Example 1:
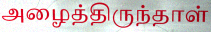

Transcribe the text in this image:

அழைத்திருந்தாள்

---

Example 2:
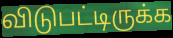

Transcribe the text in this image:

விடுபட்டிருக்க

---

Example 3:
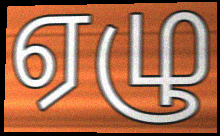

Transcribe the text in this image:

ஏழு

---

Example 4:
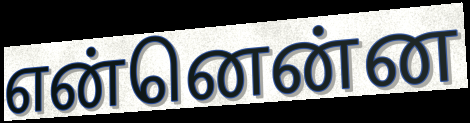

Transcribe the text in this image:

என்னென்ன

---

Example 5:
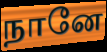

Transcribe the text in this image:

நானே